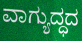
ವಾಗ್ಯುದ್ಧದ